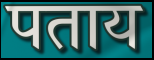
पताय